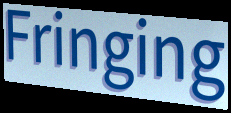
Fringing